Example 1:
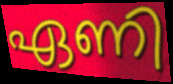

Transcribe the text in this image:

ഏണി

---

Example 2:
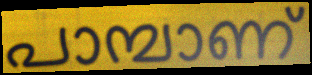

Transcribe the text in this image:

പാമ്പാണ്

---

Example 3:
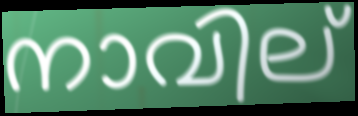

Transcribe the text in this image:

നാവില്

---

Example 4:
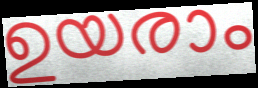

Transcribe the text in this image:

ഉയരാം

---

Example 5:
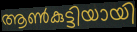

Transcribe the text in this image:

ആൺകുട്ടിയായി